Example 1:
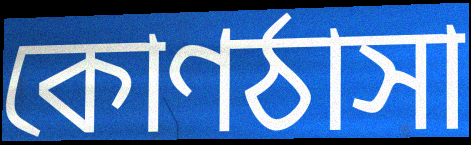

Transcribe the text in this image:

কোণঠাসা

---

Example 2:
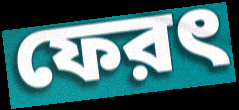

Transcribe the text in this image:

ফেরৎ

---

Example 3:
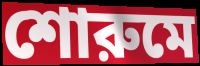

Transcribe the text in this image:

শোরুমে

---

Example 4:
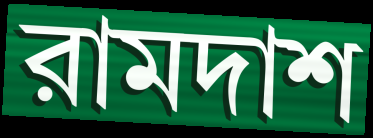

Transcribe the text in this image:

রামদাশ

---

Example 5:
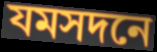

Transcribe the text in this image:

যমসদনে